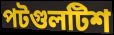
পটগুলটিশ